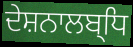
ਦੇਸ਼ਨਾਲਬ੍ਧਿ